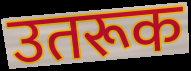
उतरूक